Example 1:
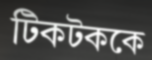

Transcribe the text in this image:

টিকটককে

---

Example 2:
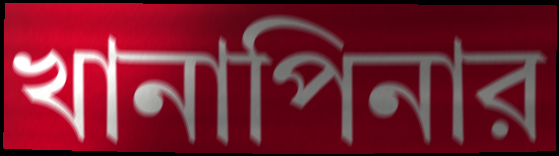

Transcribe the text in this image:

খানাপিনার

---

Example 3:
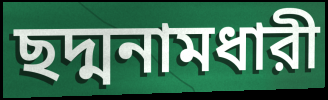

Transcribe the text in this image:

ছদ্মনামধারী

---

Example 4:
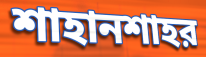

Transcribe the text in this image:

শাহানশাহর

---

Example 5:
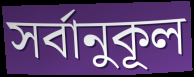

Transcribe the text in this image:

সর্বানুকূল